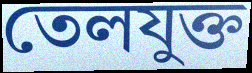
তেলযুক্ত